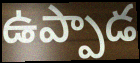
ఉప్పాడ